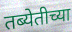
तब्येतीच्या